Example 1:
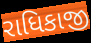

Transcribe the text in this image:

રાધિકાજી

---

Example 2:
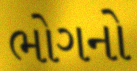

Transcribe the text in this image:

ભોગનો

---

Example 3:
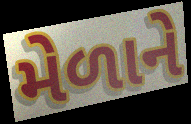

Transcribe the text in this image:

મેળાને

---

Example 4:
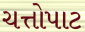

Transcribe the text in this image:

ચત્તોપાટ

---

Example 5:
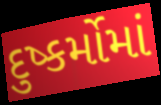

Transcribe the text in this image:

દુષ્કર્મોમાં